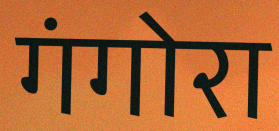
गंगोरा